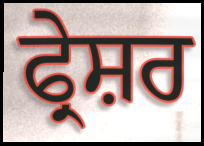
ਫ੍ਰੇਸ਼ਰ